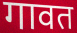
गावत